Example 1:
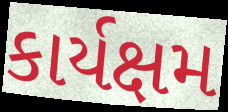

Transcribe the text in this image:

કાર્યક્ષમ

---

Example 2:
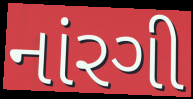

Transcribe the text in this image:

નાંરગી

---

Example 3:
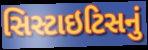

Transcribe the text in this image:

સિસ્ટાઇટિસનું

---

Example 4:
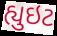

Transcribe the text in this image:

હ્યુઇટ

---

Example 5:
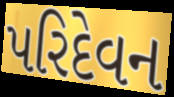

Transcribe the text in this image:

પરિદેવન